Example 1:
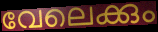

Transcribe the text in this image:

വേലെക്കും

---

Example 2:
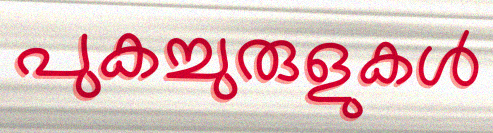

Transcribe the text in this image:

പുകച്ചുരുളുകൾ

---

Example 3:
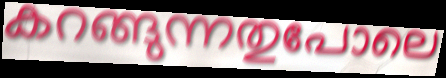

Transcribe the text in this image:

കറങ്ങുന്നതുപോലെ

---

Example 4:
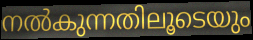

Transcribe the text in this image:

നൽകുന്നതിലൂടെയും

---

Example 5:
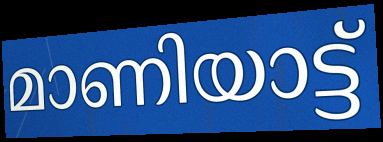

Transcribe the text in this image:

മാണിയാട്ട്